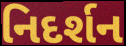
નિદર્શન